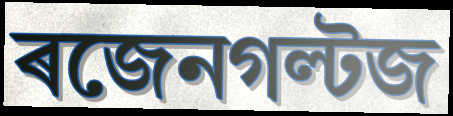
ৰজেনগল্টজ